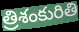
త్రిశంకురితి